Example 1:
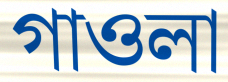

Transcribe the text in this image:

গাওলা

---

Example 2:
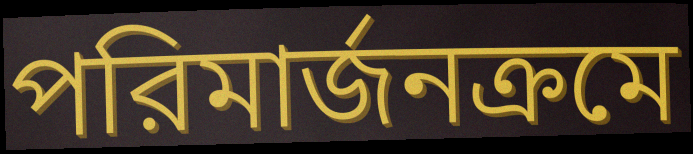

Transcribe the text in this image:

পরিমার্জনক্রমে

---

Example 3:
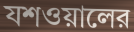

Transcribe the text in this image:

যশওয়ালের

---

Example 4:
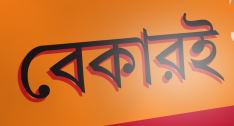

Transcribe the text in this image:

বেকারই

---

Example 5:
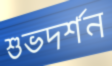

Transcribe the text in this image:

শুভদর্শন